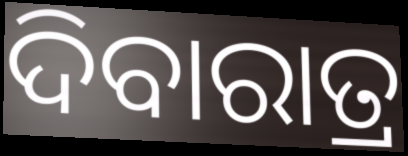
ଦିବାରାତ୍ର